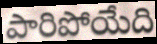
పారిపోయేది